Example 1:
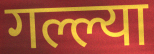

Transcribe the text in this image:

गल्ल्या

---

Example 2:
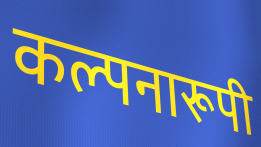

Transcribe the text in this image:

कल्पनारूपी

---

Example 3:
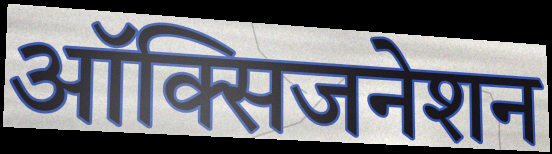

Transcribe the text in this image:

ऑक्सिजनेशन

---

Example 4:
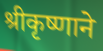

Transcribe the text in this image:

श्रीकृष्णाने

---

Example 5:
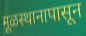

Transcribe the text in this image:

मूळस्थानापासून